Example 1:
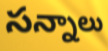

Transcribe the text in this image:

సన్నాలు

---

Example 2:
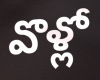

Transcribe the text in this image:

వొళ్లో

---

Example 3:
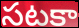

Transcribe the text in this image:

సటకా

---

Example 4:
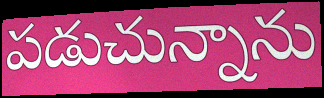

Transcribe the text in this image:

పడుచున్నాను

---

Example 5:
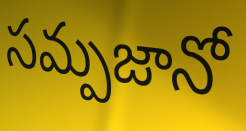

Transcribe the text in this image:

సమ్పజానో